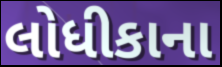
લોધીકાના